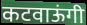
कटवाऊंगी